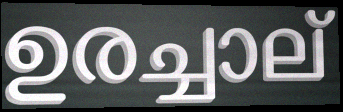
ഉരച്ചാല്